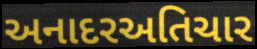
અનાદરઅતિચાર